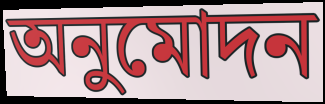
অনুমোদন